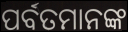
ପର୍ବତମାନଙ୍କ